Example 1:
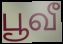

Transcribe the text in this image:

பூவீ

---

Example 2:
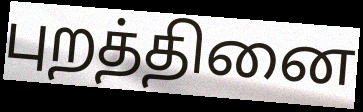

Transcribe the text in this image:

புறத்தினை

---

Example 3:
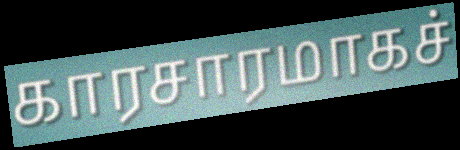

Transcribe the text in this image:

காரசாரமாகச்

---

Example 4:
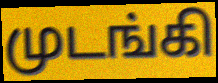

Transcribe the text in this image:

முடங்கி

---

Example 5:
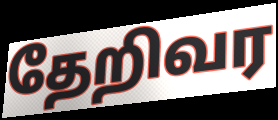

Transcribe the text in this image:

தேறிவர